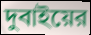
দুবাইয়ের